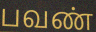
பவண்